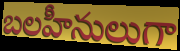
బలహీనులుగా